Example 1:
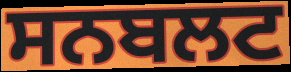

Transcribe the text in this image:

ਸਨਬਲਟ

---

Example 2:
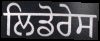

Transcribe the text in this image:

ਲਿਡੋਰੇਸ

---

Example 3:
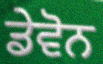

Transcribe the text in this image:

ਡੇਵੋਨ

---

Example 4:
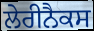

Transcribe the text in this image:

ਲੇਰੀਨੈਕਸ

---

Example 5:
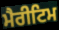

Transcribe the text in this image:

ਮੈਰੀਟਿਮ